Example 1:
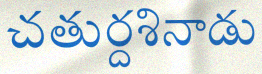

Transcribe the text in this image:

చతుర్దశినాడు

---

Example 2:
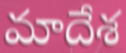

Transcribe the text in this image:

మాదేశ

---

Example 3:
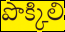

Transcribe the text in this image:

పొక్కిలి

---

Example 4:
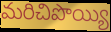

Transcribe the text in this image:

మరిచిపొయ్యి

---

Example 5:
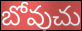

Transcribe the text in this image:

బోవుచు